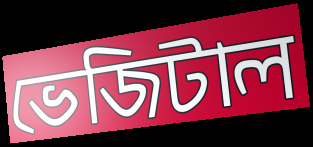
ভেজিটাল